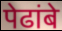
पेढांबे